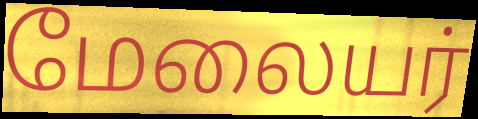
மேலையர்